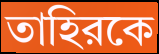
তাহিরকে